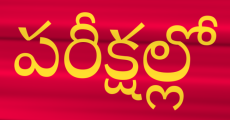
పరీక్షల్లో